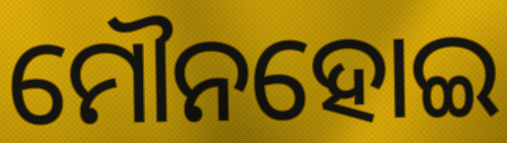
ମୌନହୋଇ